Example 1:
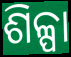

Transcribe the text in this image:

ଶିଳ୍ପା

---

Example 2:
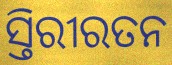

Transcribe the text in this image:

ସ୍ତିରୀରତନ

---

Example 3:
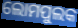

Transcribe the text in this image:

ଲୋମପୁଲକ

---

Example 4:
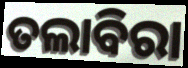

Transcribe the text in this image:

ତଲାବିରା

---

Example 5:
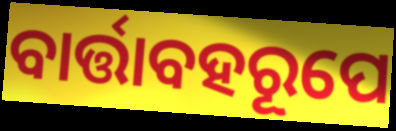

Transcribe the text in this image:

ବାର୍ତ୍ତାବହରୂପେ